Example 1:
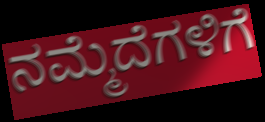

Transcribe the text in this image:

ನಮ್ಮೆದೆಗಳಿಗೆ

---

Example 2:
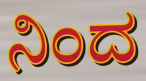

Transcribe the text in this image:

ನಿಂದ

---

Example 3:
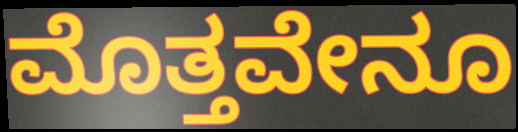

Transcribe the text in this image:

ಮೊತ್ತವೇನೂ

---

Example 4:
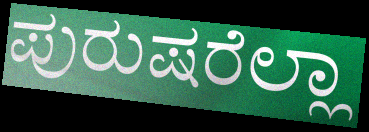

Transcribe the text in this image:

ಪುರುಷರೆಲ್ಲಾ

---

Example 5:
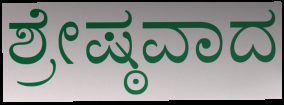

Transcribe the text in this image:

ಶ್ರೇಷ್ಠವಾದ